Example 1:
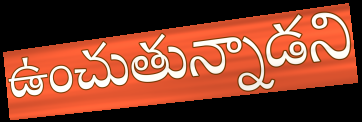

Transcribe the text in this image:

ఉంచుతున్నాడని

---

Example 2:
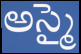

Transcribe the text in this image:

అస్మై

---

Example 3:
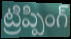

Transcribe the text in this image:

ట్రిప్పింగ్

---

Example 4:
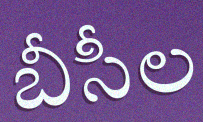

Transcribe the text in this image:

బీసీల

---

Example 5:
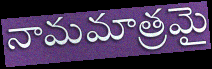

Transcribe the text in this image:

నామమాత్రమై